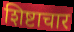
शिष्टाचार